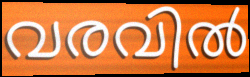
വരവിൽ